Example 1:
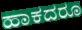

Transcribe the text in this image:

ಹಾಕದರೂ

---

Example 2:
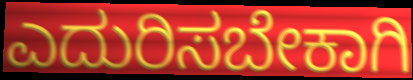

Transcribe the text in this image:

ಎದುರಿಸಬೇಕಾಗಿ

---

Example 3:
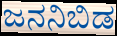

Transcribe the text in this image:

ಜನನಿಬಿಡ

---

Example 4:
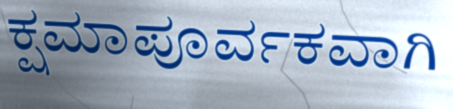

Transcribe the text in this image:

ಕ್ಷಮಾಪೂರ್ವಕವಾಗಿ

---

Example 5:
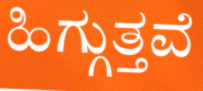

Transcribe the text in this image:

ಹಿಗ್ಗುತ್ತವೆ